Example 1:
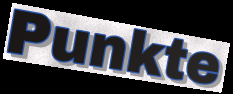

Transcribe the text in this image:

Punkte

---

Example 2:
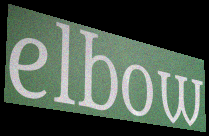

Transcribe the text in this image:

elbow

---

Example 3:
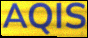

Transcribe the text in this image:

AQIS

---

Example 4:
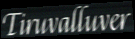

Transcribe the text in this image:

Tiruvalluver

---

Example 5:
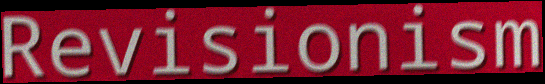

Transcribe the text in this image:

Revisionism